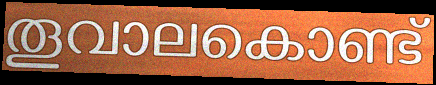
തൂവാലകൊണ്ട്